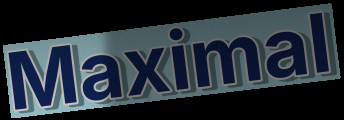
Maximal